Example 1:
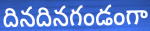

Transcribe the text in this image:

దినదినగండంగా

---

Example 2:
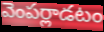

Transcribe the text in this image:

వెంపర్లాడటం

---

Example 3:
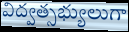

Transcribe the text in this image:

విద్వత్సభ్యులుగా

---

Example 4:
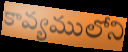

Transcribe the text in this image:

కావ్యములోని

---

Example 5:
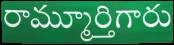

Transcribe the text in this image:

రామ్మూర్తిగారు